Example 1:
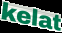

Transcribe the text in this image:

kelat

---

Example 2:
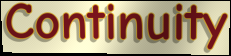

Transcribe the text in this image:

Continuity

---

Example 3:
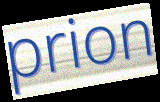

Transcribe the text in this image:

prion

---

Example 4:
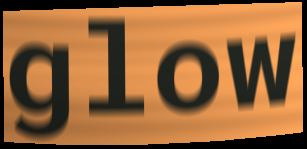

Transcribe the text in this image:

glow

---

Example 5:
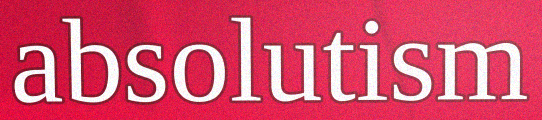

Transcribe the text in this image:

absolutism